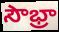
సౌభ్రా